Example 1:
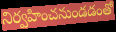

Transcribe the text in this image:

నిర్వహించనుండడంతో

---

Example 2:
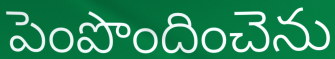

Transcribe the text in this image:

పెంపొందించెను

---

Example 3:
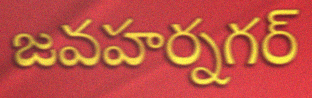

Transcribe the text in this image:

జవహర్నగర్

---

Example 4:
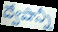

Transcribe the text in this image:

ద్వేషాన్నీ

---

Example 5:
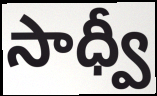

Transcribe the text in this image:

సాధ్వీ